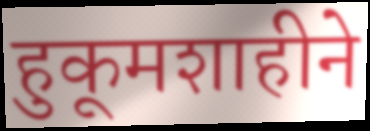
हुकूमशाहीने